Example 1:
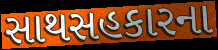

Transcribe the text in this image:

સાથસહકારના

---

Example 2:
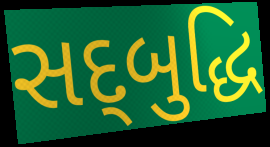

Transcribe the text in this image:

સદ્‌બુદ્ધિ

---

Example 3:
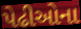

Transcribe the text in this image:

પેઢીઓના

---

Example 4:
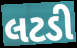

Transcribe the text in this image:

લટડી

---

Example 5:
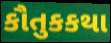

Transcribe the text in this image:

કૌતુકકથા